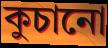
কুচানো